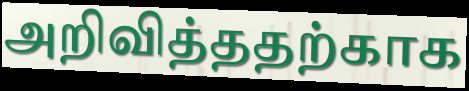
அறிவித்ததற்காக